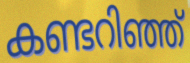
കണ്ടറിഞ്ഞ്